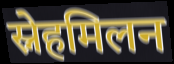
स्नेहमिलन